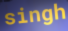
singh